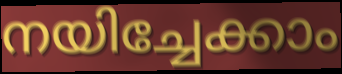
നയിച്ചേക്കാം